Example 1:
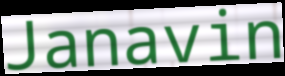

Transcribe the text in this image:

Janavin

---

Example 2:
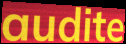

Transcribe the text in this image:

audite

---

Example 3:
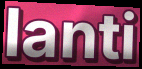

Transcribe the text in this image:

lanti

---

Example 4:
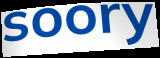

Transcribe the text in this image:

soory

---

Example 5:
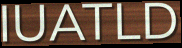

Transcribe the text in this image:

IUATLD